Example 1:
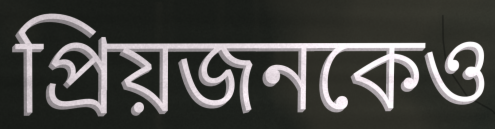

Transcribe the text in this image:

প্রিয়জনকেও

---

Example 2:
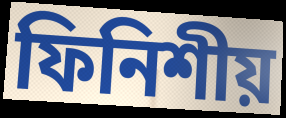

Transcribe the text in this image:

ফিনিশীয়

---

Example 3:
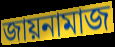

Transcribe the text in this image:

জায়নামাজ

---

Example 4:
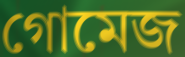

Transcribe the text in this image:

গোমেজ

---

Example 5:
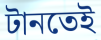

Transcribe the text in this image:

টানতেই